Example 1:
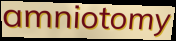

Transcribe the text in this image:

amniotomy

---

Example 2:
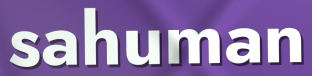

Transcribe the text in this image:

sahuman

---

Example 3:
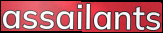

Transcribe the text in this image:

assailants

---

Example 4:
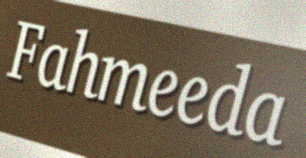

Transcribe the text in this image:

Fahmeeda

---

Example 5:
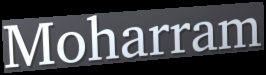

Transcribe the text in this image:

Moharram